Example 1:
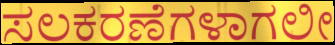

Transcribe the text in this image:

ಸಲಕರಣೆಗಳಾಗಲೀ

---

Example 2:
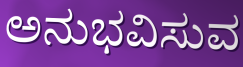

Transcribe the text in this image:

ಅನುಭವಿಸುವ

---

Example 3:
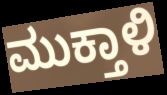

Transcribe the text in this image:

ಮುಕ್ತಾಳಿ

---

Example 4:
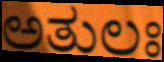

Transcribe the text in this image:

ಅತುಲಃ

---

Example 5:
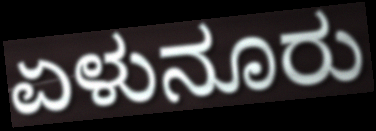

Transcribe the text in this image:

ಏಳುನೂರು